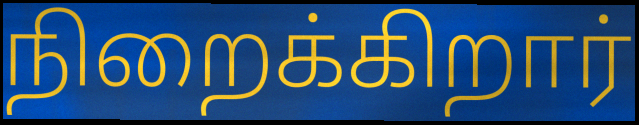
நிறைக்கிறார்